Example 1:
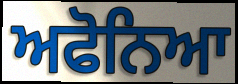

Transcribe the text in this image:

ਅਫੋਨਿਆ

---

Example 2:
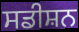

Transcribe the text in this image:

ਸਡੀਸ਼ਨ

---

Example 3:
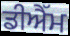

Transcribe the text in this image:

ਡੀਐੱਮ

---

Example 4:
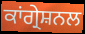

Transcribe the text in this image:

ਕਾਂਗ੍ਰੇਸ਼ਨਲ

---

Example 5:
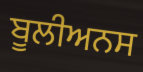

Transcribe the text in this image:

ਬੂਲੀਅਨਸ